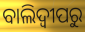
ବାଲିଦ୍ୱୀପରୁ